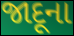
જાદૂના